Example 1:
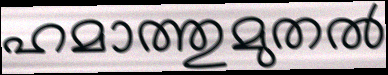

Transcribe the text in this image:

ഹമാത്തുമുതൽ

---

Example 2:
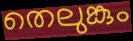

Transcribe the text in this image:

തെലുങ്കും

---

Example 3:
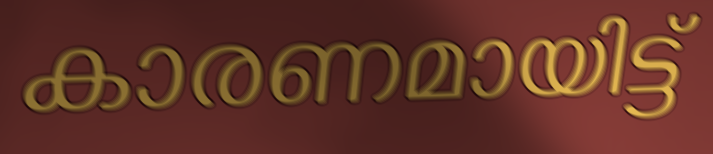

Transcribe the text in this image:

കാരണമായിട്ട്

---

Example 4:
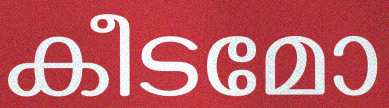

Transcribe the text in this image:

കീടമോ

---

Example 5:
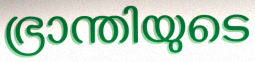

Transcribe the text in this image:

ഭ്രാന്തിയുടെ